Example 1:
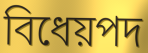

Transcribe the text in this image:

বিধেয়পদ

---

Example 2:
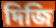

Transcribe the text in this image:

দিজি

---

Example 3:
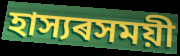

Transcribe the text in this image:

হাস্যৰসময়ী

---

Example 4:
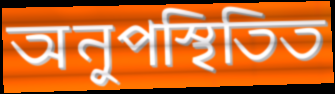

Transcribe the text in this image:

অনুপস্থিতিত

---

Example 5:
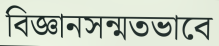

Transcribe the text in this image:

বিজ্ঞানসন্মতভাবে